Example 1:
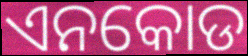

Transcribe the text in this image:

ଏନକୋଡ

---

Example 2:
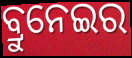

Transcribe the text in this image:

ବ୍ରୁନେଇର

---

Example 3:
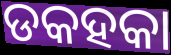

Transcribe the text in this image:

ଡକହକା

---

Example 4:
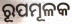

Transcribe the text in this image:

ରୂପମୂଳକ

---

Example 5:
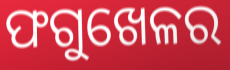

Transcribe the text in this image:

ଫଗୁଖେଳର